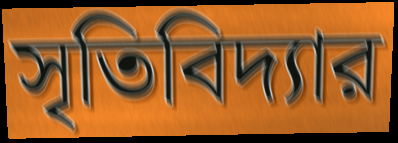
সৃতিবিদ্যার